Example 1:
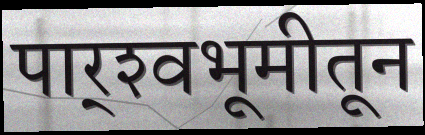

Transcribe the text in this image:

पार्श्वभूमीतून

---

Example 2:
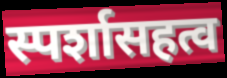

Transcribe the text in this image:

स्पर्शासहत्व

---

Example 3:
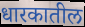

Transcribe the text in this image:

धारकातील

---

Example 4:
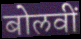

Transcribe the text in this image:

बोलवीं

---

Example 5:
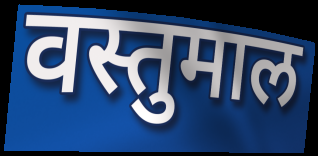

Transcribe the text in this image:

वस्तुमाल